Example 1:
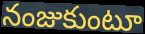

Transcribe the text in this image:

నంజుకుంటూ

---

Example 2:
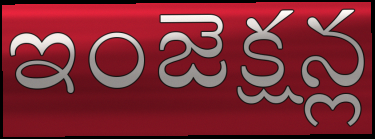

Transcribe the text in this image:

ఇంజెక్షన్ల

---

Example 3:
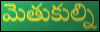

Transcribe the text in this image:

మెతుకుల్ని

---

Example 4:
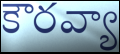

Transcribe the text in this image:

కౌరవ్యా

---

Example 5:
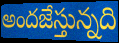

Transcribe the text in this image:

అందజేస్తున్నది